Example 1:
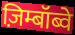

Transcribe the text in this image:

ज़िम्बॉब्वे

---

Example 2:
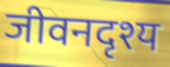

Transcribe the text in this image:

जीवनदृश्य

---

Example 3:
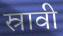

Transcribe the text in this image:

स्रावी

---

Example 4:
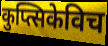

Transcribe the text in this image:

कुप्त्सिकेविच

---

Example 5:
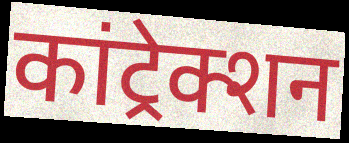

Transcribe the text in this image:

कांट्रेक्शन